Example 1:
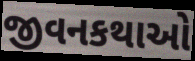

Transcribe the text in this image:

જીવનકથાઓ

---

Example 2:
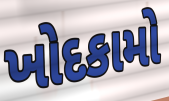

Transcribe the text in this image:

ખોદકામો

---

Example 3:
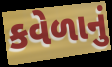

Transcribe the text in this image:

કવેળાનું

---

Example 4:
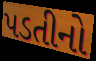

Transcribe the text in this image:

પડતીનો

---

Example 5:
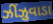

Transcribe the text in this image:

ઝીંઝુવાડા